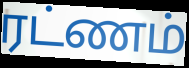
ரட்ணம்